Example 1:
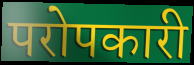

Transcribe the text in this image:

परोपकारी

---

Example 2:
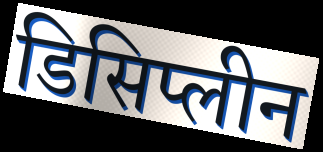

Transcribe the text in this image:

डिसिप्लीन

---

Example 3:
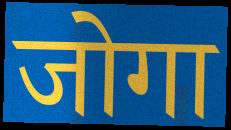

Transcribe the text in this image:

जोगा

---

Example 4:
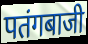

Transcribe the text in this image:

पतंगबाजी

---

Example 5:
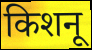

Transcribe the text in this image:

किशनू